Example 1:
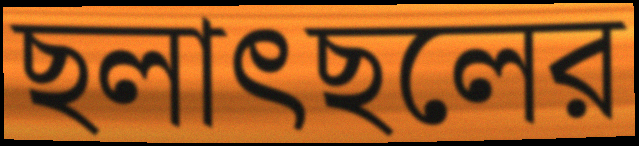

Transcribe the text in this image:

ছলাৎছলের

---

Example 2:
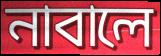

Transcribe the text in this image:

নাবালে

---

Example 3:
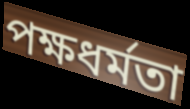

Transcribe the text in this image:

পক্ষধর্মতা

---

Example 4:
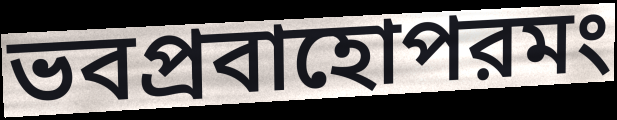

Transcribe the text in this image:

ভবপ্রবাহোপরমং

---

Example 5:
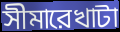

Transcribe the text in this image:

সীমারেখাটা